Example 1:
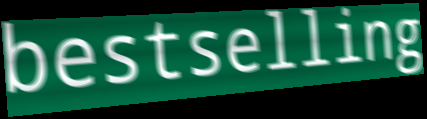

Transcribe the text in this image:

bestselling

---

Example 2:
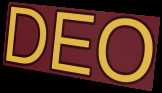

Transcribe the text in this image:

DEO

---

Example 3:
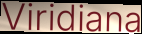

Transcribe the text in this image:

Viridiana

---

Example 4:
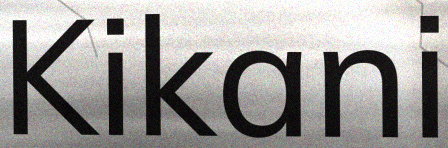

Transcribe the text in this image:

Kikani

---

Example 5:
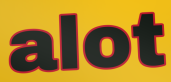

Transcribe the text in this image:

alot